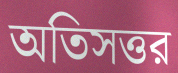
অতিসত্তর